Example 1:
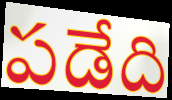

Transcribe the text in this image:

పడేది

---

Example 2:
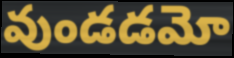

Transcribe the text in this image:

వుండడమో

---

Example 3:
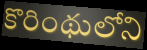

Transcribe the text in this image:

కొరింథులోని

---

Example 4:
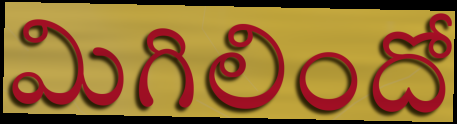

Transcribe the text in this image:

మిగిలిందో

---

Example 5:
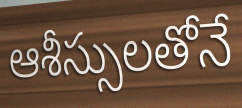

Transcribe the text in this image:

ఆశీస్సులతోనే